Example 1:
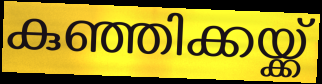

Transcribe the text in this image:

കുഞ്ഞിക്കയ്ക്ക്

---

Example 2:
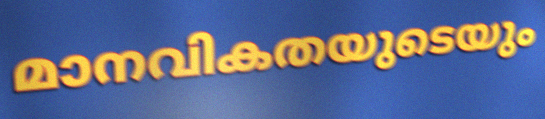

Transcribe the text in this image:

മാനവികതയുടെയും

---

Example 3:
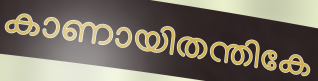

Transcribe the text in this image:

കാണായിതന്തികേ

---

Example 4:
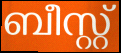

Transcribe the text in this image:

ബീസ്റ്റ്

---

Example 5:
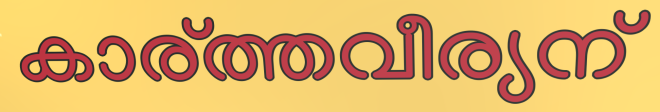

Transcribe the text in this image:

കാര്ത്തവീര്യന്